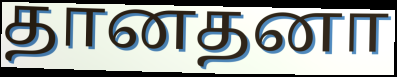
தானதனா